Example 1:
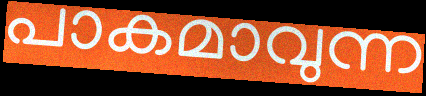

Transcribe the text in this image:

പാകമാവുന്ന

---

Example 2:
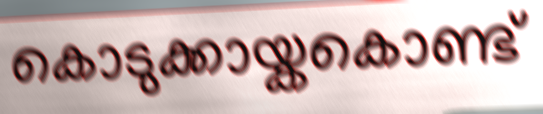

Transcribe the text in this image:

കൊടുക്കായ്കകൊണ്ട്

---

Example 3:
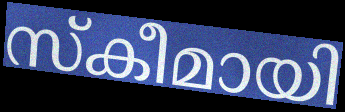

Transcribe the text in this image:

സ്കീമായി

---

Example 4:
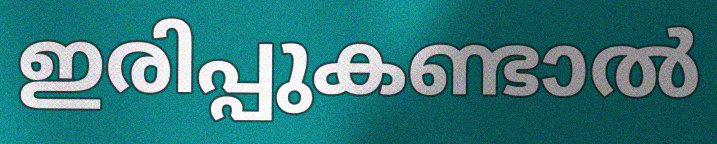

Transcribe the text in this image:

ഇരിപ്പുകണ്ടാൽ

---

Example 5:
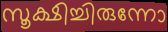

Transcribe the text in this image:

സൂക്ഷിച്ചിരുന്നോ